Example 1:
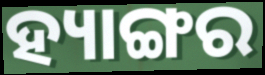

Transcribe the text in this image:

ହ୍ୟାଙ୍ଗର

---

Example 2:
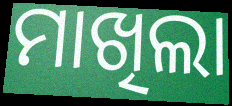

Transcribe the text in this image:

ମାଖିଲା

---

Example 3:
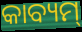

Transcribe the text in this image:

କାବ୍ୟମ୍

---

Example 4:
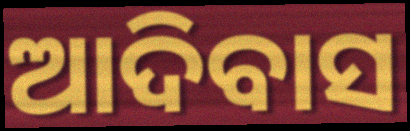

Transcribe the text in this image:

ଆଦିବାସ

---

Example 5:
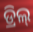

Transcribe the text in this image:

ଡ୍ରିଲ୍